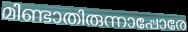
മിണ്ടാതിരുന്നാപ്പോരേ